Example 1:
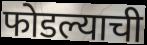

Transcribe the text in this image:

फोडल्याची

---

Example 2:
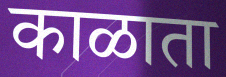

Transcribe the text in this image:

काळाता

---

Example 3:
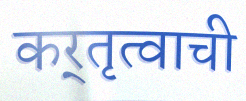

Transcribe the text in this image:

कर्तृत्वाची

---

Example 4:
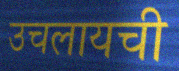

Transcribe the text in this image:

उचलायची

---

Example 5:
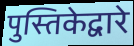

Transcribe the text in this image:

पुस्तिकेद्वारे